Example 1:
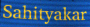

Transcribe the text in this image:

Sahityakar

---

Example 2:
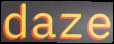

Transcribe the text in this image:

daze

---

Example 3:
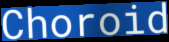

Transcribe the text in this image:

Choroid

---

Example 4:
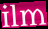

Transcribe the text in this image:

ilm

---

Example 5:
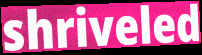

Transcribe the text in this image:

shriveled